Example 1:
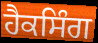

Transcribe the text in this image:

ਹੈਕਸਿੰਗ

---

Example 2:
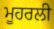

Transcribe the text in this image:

ਮੂਹਰਲੀ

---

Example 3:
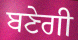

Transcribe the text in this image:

ਬਣੇਗੀ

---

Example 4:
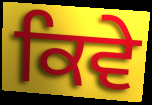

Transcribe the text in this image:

ਕਿਵੇ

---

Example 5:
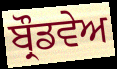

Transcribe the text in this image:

ਬ੍ਰੌਡਵੇਅ